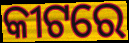
କୀଟରେ